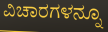
ವಿಚಾರಗಳನ್ನೂ